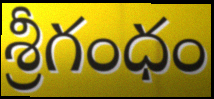
శ్రీగంధం